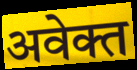
अवेक्त